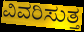
ವಿವರಿಸುತ್ತ